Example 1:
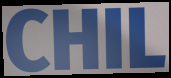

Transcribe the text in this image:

CHIL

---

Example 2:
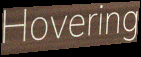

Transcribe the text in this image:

Hovering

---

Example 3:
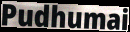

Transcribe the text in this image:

Pudhumai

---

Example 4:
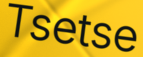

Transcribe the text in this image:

Tsetse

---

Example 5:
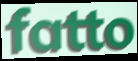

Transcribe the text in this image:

fatto